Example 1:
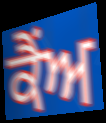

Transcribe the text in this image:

ਕੈਂਅ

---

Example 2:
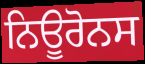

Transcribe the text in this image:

ਨਿਊਰੋਨਸ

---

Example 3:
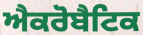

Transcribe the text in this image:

ਐਕਰੋਬੈਟਿਕ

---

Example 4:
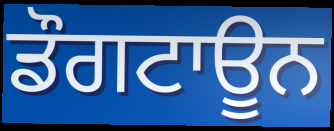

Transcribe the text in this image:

ਡੌਗਟਾਊਨ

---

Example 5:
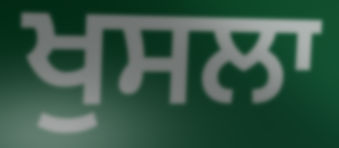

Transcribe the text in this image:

ਖੁਸਲਾ